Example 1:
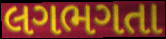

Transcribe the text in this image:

લગભગતા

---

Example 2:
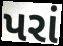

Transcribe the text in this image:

પરાં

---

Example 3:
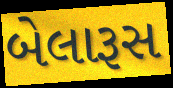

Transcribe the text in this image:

બેલારૂસ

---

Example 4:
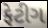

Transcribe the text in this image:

ફેટીગ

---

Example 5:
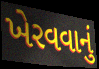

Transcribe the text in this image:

ખેરવવાનું